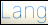
Lang